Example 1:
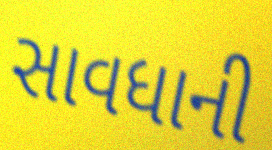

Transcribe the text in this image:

સાવધાની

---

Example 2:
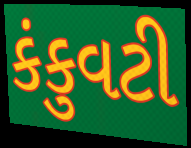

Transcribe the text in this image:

કંકુવટી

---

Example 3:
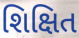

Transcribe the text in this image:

શિક્ષિત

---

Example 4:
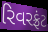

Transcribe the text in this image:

રિવરફ્રંટ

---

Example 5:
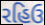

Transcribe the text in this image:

રહિઉ